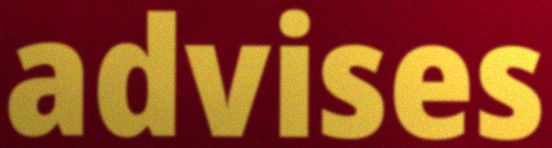
advises